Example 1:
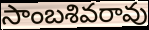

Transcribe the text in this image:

సాంబశివరావు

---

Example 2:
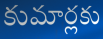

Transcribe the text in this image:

కుమార్లకు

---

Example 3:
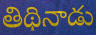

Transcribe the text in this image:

తిథినాడు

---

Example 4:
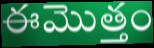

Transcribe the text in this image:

ఈమొత్తం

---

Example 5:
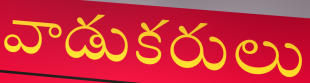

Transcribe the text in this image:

వాడుకరులు